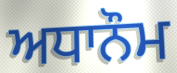
ਅਧਾਨੌਮ